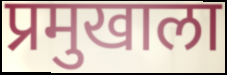
प्रमुखाला